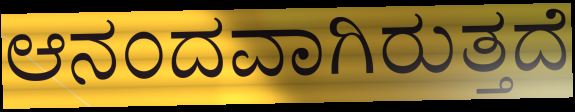
ಆನಂದವಾಗಿರುತ್ತದೆ